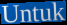
Untuk